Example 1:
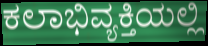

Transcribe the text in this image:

ಕಲಾಭಿವ್ಯಕ್ತಿಯಲ್ಲಿ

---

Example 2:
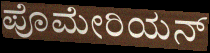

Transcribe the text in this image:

ಪೊಮೇರಿಯನ್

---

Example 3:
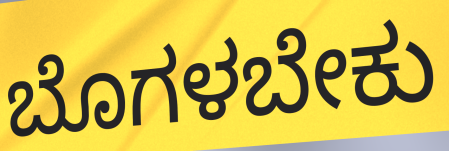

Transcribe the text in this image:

ಬೊಗಳಬೇಕು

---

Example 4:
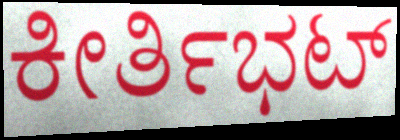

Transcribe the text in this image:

ಕೀರ್ತಿಭಟ್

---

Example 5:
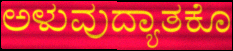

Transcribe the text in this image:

ಅಳುವುದ್ಯಾತಕೊ